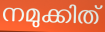
നമുക്കിത്